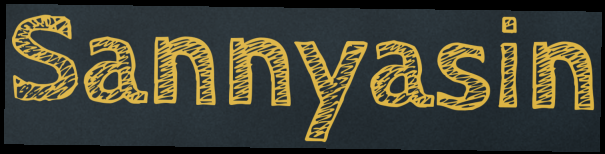
Sannyasin